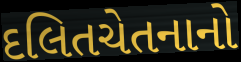
દલિતચેતનાનો